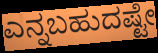
ಎನ್ನಬಹುದಷ್ಟೇ